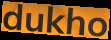
dukho